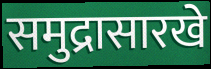
समुद्रासारखे